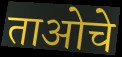
ताओचे